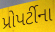
પ્રોપર્ટીના